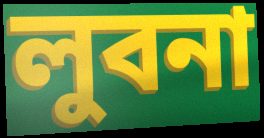
লুবনা